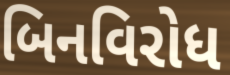
બિનવિરોધ